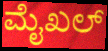
ಮೈಖಲ್